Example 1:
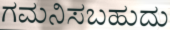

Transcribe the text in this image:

ಗಮನಿಸಬಹುದು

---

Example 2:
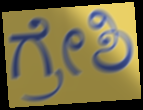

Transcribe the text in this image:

ಗ್ರೇಶಿ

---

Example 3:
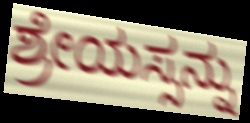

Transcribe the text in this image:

ಶ್ರೇಯಸ್ಸನ್ನು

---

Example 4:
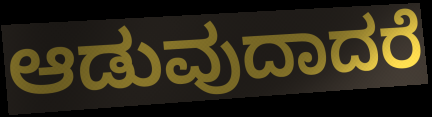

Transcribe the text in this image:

ಆಡುವುದಾದರೆ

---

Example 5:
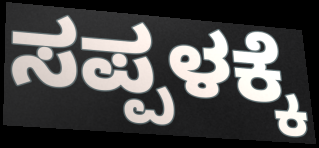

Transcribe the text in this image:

ಸಪ್ಪಳಕ್ಕೆ